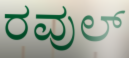
ರವುಲ್